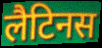
लैटिनस